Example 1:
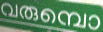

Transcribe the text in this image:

വരുമ്പൊ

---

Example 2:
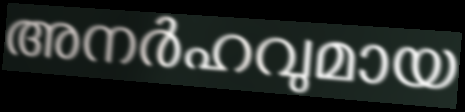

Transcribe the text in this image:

അനർഹവുമായ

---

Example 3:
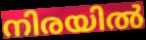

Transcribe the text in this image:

നിരയിൽ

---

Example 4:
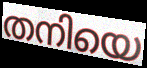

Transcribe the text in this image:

തനിയെ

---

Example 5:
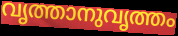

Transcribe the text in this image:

വൃത്താനുവൃത്തം